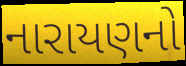
નારાયણનો